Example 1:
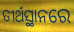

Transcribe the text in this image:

ତୀର୍ଥସ୍ଥାନରେ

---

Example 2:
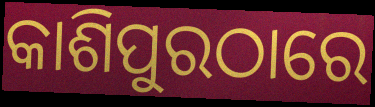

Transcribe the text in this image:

କାଶିପୁରଠାରେ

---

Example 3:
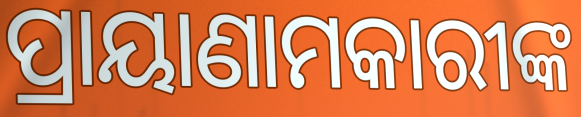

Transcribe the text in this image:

ପ୍ରାୟାଣାମକାରୀଙ୍କ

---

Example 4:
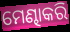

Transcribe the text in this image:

ମେଣ୍ଢାକରି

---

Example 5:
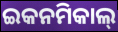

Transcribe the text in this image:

ଇକନମିକାଲ୍